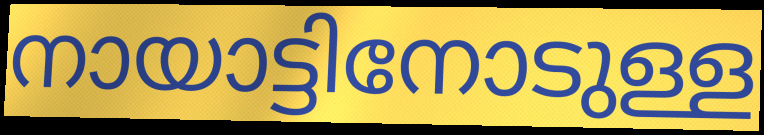
നായാട്ടിനോടുള്ള